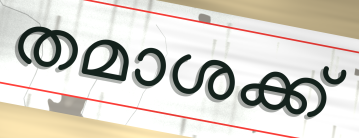
തമാശക്ക്